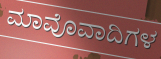
ಮಾವೊವಾದಿಗಳ